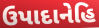
ઉપાદાનેહિ